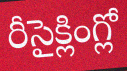
రీసైక్లింగ్లో